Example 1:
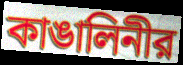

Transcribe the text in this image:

কাঙালিনীর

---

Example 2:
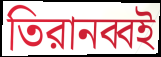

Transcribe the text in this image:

তিরানব্বই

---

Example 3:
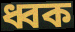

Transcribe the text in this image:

ধ্বক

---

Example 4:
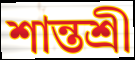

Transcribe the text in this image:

শান্তশ্রী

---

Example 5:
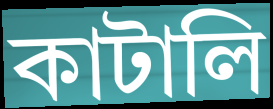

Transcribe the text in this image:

কাটালি